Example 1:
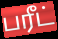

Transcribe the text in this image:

பரீட்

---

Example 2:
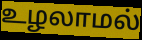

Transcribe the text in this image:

உழலாமல்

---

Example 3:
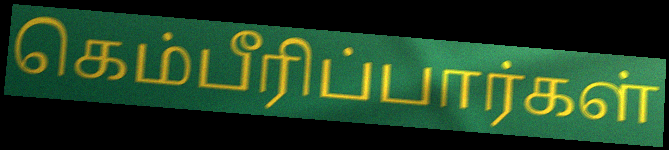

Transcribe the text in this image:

கெம்பீரிப்பார்கள்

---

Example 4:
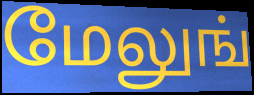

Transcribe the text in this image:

மேலுங்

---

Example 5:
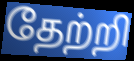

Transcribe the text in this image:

தேற்றி